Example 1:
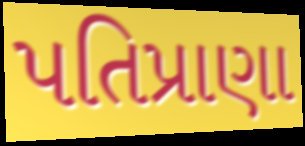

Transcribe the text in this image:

પતિપ્રાણા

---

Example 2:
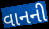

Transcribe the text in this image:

વાનની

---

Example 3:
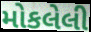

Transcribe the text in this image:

મોકલેલી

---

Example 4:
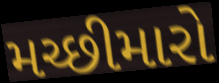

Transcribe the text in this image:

મચ્છીમારો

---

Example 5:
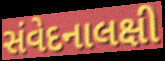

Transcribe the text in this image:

સંવેદનાલક્ષી